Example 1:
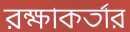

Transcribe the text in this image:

রক্ষাকর্তার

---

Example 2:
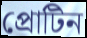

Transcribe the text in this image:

প্রোটিন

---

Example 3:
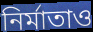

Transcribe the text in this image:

নির্মাতাও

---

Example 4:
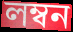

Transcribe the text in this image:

লম্বন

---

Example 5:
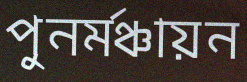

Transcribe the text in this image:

পুনর্মঞ্চায়ন